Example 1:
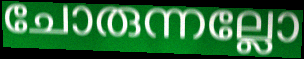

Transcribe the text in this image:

ചോരുന്നല്ലോ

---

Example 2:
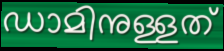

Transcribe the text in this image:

ഡാമിനുള്ളത്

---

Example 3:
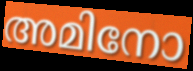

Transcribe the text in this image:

അമിനോ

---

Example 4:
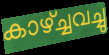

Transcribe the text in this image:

കാഴ്ച്ചവച്ചു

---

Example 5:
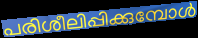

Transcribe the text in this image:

പരിശീലിപ്പിക്കുമ്പോൾ